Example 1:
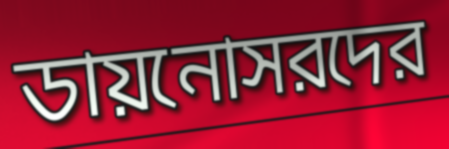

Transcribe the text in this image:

ডায়নোসরদের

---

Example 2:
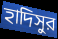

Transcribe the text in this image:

হাদিসুর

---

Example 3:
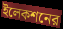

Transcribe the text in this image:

ইলেকশনের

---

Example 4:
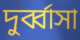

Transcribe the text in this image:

দুর্ব্বাসা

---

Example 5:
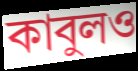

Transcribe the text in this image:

কাবুলও